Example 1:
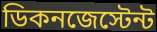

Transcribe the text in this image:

ডিকনজেস্টেন্ট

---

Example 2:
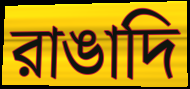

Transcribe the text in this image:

রাঙাদি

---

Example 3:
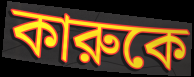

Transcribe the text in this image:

কারুকে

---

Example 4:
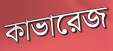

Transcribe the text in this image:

কাভারেজ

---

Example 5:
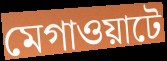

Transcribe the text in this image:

মেগাওয়াটে